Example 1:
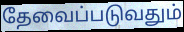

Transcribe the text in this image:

தேவைப்படுவதும்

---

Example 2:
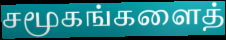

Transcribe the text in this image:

சமூகங்களைத்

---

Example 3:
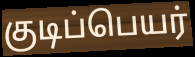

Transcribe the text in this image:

குடிப்பெயர்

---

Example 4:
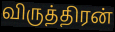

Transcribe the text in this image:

விருத்திரன்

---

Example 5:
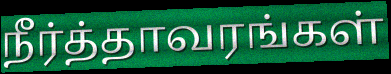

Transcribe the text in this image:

நீர்த்தாவரங்கள்